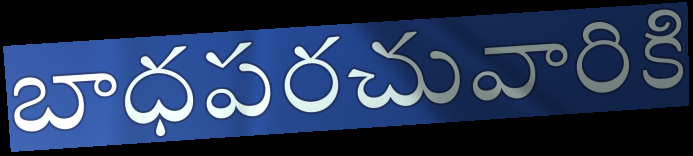
బాధపరచువారికి